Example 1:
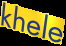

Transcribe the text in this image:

khele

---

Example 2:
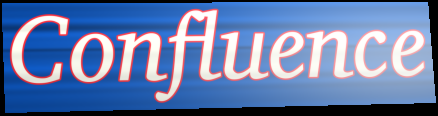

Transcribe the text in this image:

Confluence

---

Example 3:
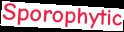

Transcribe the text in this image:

Sporophytic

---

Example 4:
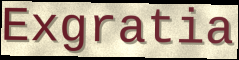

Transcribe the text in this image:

Exgratia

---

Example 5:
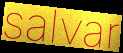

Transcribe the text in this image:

salvar